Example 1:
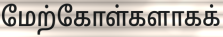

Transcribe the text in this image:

மேற்கோள்களாகக்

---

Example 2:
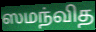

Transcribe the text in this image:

ஸமந்வித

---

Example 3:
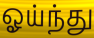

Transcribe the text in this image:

ஓய்ந்து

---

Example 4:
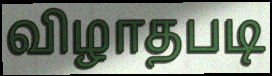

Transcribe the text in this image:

விழாதபடி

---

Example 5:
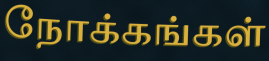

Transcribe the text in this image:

நோக்கங்கள்